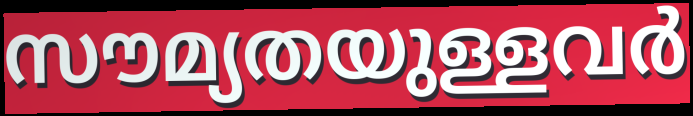
സൗമ്യതയുള്ളവർ